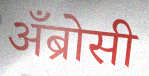
अँब्रोसी